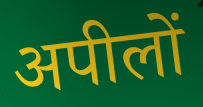
अपीलों